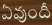
ఏవుందీ